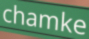
chamke